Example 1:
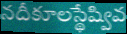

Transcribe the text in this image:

నదీకూలస్థేష్వివ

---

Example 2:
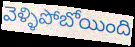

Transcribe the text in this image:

వెళ్ళిపోబోయింది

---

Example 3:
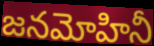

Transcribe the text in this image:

జనమోహినీ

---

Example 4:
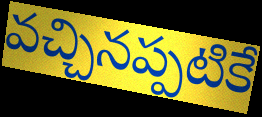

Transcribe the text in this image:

వచ్చినప్పటికే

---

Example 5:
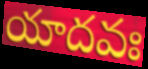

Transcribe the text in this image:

యాదవః